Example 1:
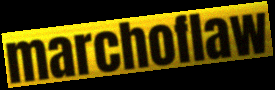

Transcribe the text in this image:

marchoflaw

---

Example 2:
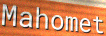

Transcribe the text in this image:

Mahomet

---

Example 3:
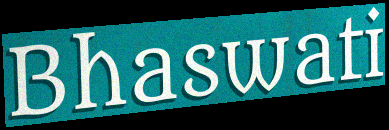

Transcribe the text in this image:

Bhaswati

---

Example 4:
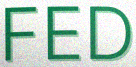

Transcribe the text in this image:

FED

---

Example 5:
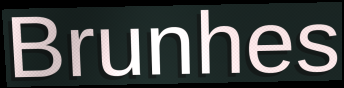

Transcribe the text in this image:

Brunhes